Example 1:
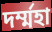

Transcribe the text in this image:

দৰ্ম্মহা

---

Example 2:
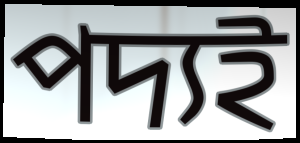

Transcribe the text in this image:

পদ্যই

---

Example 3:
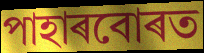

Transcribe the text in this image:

পাহাৰবোৰত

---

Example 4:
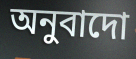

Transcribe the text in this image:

অনুবাদো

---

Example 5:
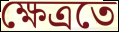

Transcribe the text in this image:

ক্ষেত্ৰতে